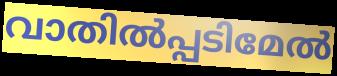
വാതിൽപ്പടിമേൽ